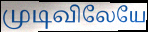
முடிவிலேயே